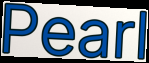
Pearl